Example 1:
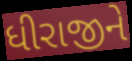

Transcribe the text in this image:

ધીરાજીને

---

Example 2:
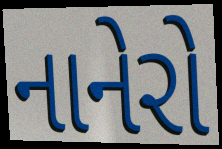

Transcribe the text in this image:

નાનેરો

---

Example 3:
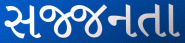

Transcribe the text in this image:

સજ્જનતા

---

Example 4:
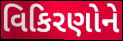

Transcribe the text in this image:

વિકિરણોને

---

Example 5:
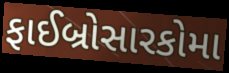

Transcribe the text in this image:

ફાઈબ્રોસારકોમા